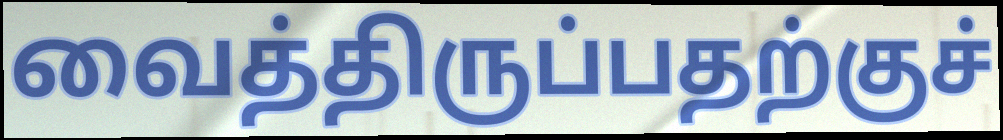
வைத்திருப்பதற்குச்